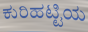
ಕುರಿಹಟ್ಟಿಯ